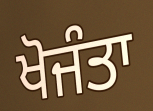
ਖੋਜੰਤਾ